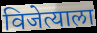
विजेत्याला